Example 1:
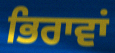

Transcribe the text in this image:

ਭਿਰਾਵਾਂ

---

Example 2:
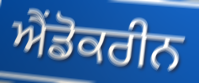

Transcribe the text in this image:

ਐਂਡੋਕਰੀਨ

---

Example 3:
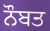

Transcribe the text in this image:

ਨੌਬਤ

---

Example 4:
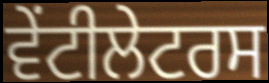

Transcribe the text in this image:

ਵੇਂਟੀਲੇਟਰਸ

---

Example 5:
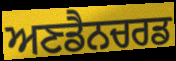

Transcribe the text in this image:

ਅਣਡੈਨਚਰਡ